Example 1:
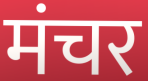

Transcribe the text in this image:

मंचर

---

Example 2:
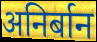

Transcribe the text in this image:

अनिर्बान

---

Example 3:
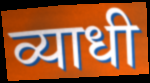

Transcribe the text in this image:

व्याधी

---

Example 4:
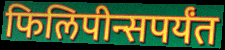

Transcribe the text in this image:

फिलिपीन्सपर्यंत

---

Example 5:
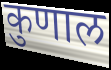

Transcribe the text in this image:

कुणाल